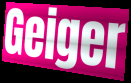
Geiger